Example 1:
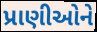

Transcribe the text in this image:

પ્રાણીઓને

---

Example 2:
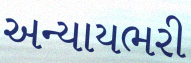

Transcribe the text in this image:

અન્યાયભરી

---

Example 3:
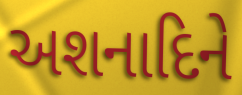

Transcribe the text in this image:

અશનાદિને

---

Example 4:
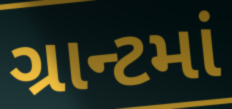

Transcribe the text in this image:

ગ્રાન્ટમાં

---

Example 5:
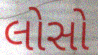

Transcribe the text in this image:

લોસો